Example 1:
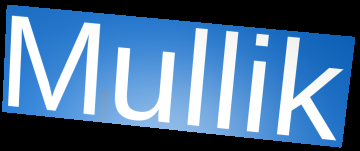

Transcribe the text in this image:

Mullik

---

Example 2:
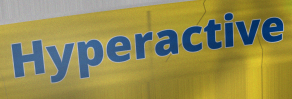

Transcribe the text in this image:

Hyperactive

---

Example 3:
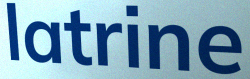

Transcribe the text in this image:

latrine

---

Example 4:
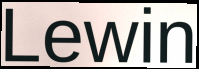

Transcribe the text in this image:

Lewin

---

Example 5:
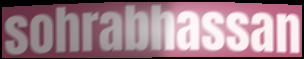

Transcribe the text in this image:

sohrabhassan